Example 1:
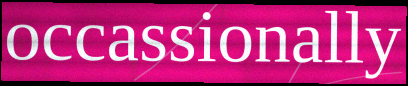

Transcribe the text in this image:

occassionally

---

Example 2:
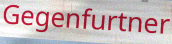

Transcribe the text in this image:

Gegenfurtner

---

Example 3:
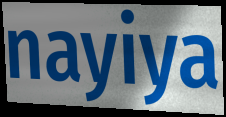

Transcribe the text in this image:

nayiya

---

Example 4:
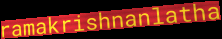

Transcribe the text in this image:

ramakrishnanlatha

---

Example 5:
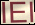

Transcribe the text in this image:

IEI